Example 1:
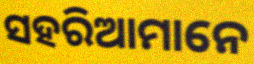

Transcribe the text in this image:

ସହରିଆମାନେ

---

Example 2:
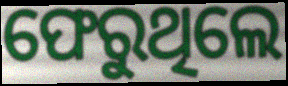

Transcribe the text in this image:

ଫେରୁଥିଲେ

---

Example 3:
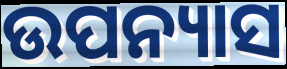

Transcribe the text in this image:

ଉପନ୍ୟାସ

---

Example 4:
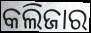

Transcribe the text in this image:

କଲିଜାର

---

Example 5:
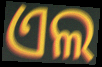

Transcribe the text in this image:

ଏଲ